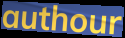
authour